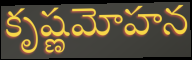
కృష్ణమోహన